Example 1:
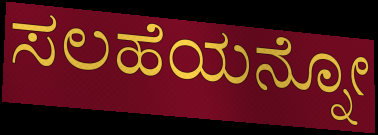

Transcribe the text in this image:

ಸಲಹೆಯನ್ನೋ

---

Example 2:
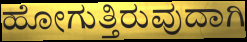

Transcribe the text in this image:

ಹೋಗುತ್ತಿರುವುದಾಗಿ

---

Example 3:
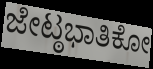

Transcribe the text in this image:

ಜೇಟ್ಠಭಾತಿಕೋ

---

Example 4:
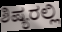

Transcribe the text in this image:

ಶಿಷ್ಯರಲ್ಲಿ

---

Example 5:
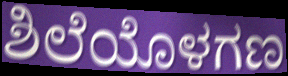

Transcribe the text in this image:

ಶಿಲೆಯೊಳಗಣ